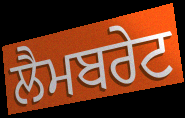
ਲੈਮਬਰੇਟ